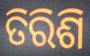
ତିରିଶି